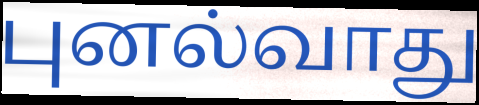
புனல்வாது